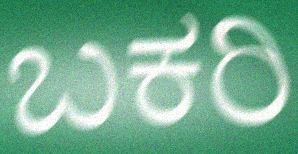
ಬಕರಿ